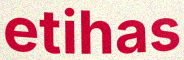
etihas